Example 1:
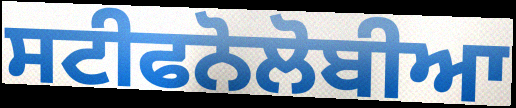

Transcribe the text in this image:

ਸਟੀਫਨੋਲੋਬੀਆ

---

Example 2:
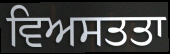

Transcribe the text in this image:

ਵਿਅਸਤਤਾ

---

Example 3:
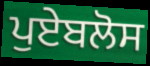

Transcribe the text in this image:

ਪੁਏਬਲੋਸ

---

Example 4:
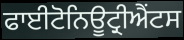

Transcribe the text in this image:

ਫਾਈਟੋਨਿਊਟ੍ਰੀਐਂਟਸ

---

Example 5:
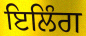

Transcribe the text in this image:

ਇਲਿੰਗ